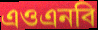
এওএনবি